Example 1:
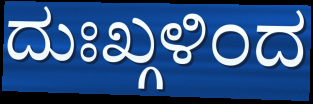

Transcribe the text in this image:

ದುಃಖ್ಗಳಿಂದ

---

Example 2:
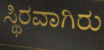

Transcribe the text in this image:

ಸ್ಥಿರವಾಗಿರು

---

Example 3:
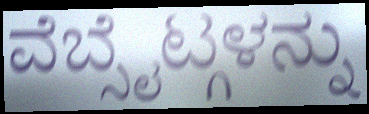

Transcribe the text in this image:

ವೆಬ್ಸೈಟ್ಗಳನ್ನು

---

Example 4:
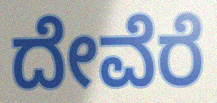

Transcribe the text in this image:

ದೇವೆರೆ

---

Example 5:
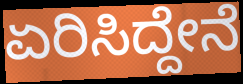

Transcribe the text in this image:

ಏರಿಸಿದ್ದೇನೆ